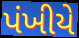
પંખીયે